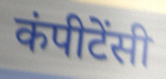
कंपीटेंसी